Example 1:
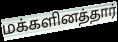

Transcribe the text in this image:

மக்களினத்தார்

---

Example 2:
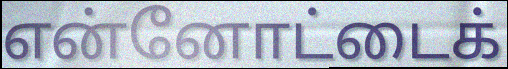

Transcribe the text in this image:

என்னோட்டைக்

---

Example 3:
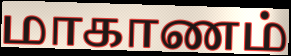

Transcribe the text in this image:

மாகாணம்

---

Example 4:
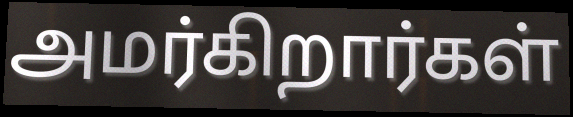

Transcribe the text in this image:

அமர்கிறார்கள்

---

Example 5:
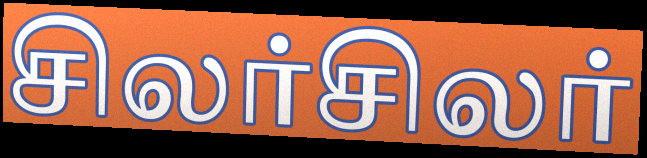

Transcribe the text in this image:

சிலர்சிலர்